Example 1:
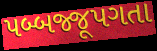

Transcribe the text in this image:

પબ્બજ્જૂપગતા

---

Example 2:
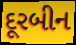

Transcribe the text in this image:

દૂરબીન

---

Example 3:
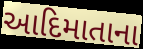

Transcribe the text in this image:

આદિમાતાના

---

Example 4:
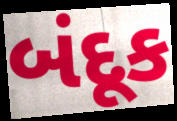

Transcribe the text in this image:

બંદૂક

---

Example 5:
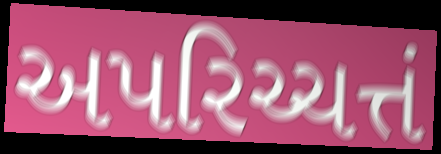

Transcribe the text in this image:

અપરિચ્ચત્તં